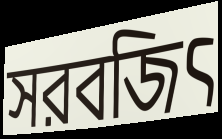
সরবজিৎ